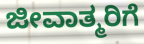
ಜೀವಾತ್ಮರಿಗೆ